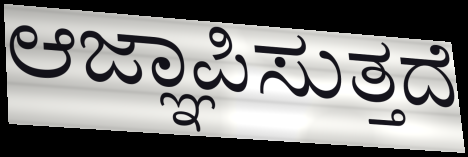
ಆಜ್ಞಾಪಿಸುತ್ತದೆ